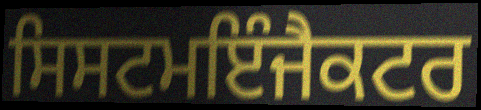
ਸਿਸਟਮਇੰਜੈਕਟਰ